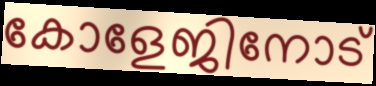
കോളേജിനോട്